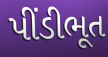
પીંડીભૂત